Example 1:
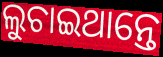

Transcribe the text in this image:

ଲୁଚାଇଥାନ୍ତେ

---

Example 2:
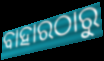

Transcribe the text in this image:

ବାହାରଠାରୁ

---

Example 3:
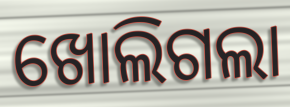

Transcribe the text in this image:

ଖୋଲିଗଲା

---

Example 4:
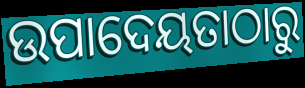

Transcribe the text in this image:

ଉପାଦେୟତାଠାରୁ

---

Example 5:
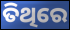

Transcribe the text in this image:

ତିଥିରେ